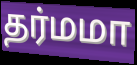
தர்மமா